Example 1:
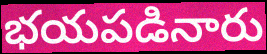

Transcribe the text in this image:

భయపడినారు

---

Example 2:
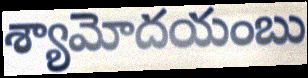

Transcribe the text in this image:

శ్యామోదయంబు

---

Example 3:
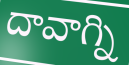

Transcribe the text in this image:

దావాగ్ని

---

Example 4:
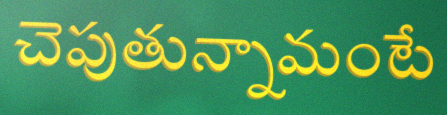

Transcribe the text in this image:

చెపుతున్నామంటే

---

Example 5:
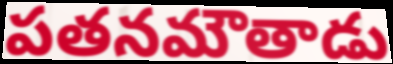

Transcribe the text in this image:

పతనమౌతాడు